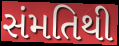
સંમતિથી